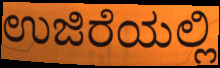
ಉಜಿರೆಯಲ್ಲಿ